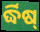
ର୍ଦ୍ଧିଷ୍